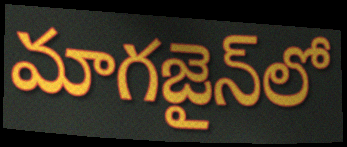
మాగజైన్‌లో